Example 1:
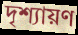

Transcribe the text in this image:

দৃশ্যায়ণ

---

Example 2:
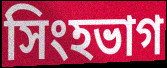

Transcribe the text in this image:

সিংহভাগ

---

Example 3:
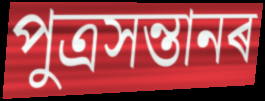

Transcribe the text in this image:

পুত্ৰসন্তানৰ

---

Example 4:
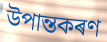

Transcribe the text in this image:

উপান্তকৰণ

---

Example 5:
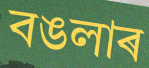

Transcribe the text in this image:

বঙলাৰ